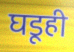
घडूही